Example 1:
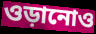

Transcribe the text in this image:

ওড়ানোও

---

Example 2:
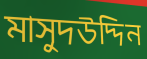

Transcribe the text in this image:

মাসুদউদ্দিন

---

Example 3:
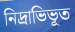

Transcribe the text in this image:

নিদ্রাভিভূত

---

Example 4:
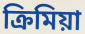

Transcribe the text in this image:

ক্রিমিয়া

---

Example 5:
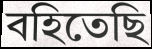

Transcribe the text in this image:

বহিতেছি